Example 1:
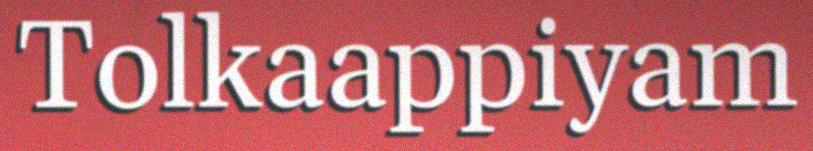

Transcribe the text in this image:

Tolkaappiyam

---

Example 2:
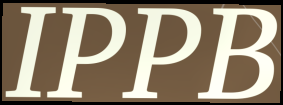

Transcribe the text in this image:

IPPB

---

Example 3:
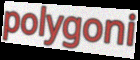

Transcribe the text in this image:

polygoni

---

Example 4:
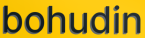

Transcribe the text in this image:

bohudin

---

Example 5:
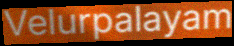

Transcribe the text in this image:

Velurpalayam